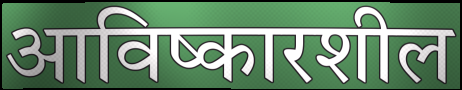
आविष्कारशील